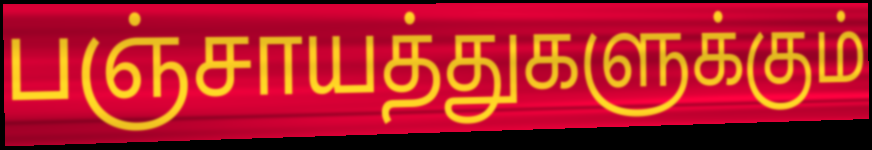
பஞ்சாயத்துகளுக்கும்